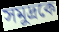
সমুদ্রকে